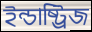
ইন্ডাষ্ট্রিজ